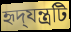
হৃদ্‌যন্ত্রটি